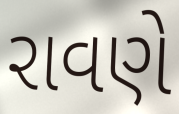
રાવણે